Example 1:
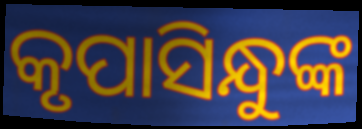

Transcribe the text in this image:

କୃପାସିନ୍ଧୁଙ୍କ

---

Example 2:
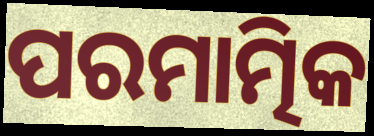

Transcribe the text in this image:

ପରମାତ୍ମିକ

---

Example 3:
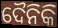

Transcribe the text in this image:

ଦୈନିକି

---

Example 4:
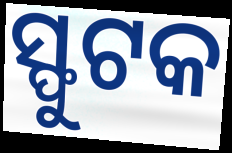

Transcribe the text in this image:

ସ୍ଫୁଟକ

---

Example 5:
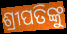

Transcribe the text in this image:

ଶ୍ରୀପତିଙ୍କୁ